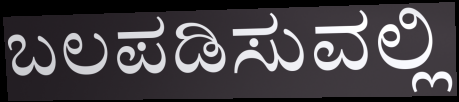
ಬಲಪಡಿಸುವಲ್ಲಿ